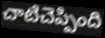
చాటిచెప్పింది